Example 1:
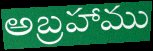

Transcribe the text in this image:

అబ్రహాము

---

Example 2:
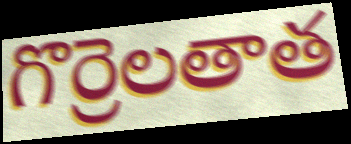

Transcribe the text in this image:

గొర్రెలతాత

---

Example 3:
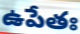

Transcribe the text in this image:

ఉపేతః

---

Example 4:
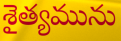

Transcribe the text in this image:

శైత్యమును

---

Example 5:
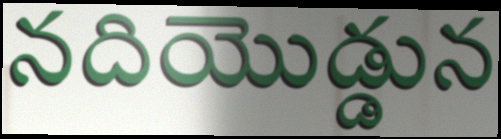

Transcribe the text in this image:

నదియొడ్డున